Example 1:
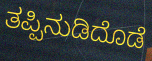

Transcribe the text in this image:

ತಪ್ಪಿನುಡಿದೊಡೆ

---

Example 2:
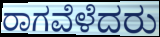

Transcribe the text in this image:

ರಾಗವೆಳೆದರು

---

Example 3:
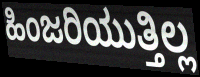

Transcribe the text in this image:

ಹಿಂಜರಿಯುತ್ತಿಲ್ಲ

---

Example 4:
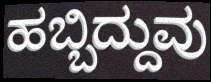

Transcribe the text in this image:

ಹಬ್ಬಿದ್ದುವು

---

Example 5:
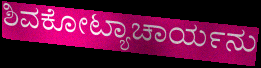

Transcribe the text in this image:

ಶಿವಕೋಟ್ಯಾಚಾರ್ಯನು